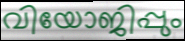
വിയോജിപ്പും